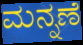
ಮನ್ನಣೆ